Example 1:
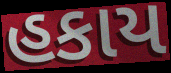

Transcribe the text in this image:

હકાય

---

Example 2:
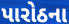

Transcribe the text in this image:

પારોઠના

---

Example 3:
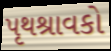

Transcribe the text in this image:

પૃથશ્રાવકો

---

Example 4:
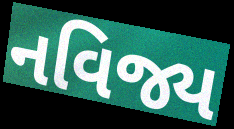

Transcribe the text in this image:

નવિજ્ય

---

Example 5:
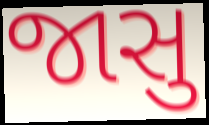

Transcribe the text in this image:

જાસુ